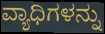
ವ್ಯಾಧಿಗಳನ್ನು